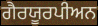
ਗੈਰਯੂਰਪੀਅਨ